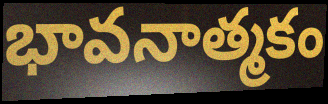
భావనాత్మకం